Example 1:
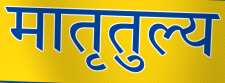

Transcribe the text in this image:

मातृतुल्य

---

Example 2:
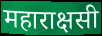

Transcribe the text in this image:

महाराक्षसी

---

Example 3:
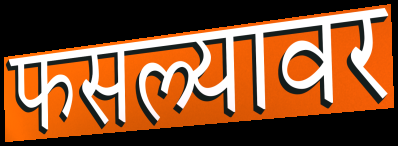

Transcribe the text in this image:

फसल्यावर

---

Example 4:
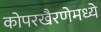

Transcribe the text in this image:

कोपरखैरणेमध्ये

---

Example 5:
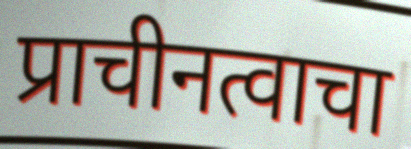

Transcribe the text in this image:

प्राचीनत्वाचा